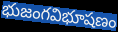
భుజంగవిభూషణం